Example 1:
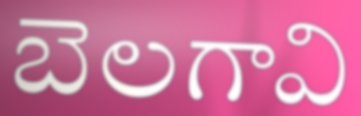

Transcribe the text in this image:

బెలగావి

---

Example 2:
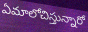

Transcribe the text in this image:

ఏమాలోచిస్తున్నారో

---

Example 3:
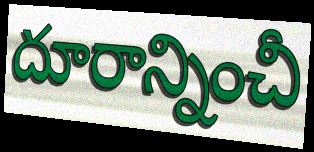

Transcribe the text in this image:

దూరాన్నించీ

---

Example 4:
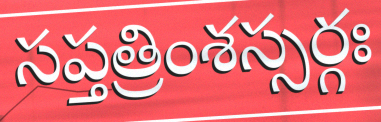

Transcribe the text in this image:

సప్తత్రింశస్సర్గః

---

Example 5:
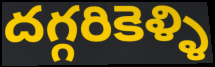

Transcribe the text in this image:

దగ్గరికెళ్ళి